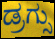
ಡ್ರಗ್ಸು